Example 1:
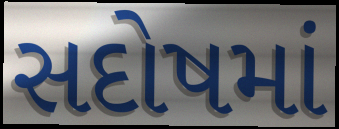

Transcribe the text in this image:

સદોષમાં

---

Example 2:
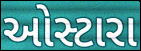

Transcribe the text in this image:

ઓસ્ટારા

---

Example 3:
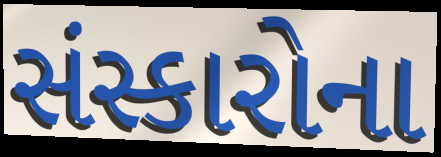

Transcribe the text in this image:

સંસ્કારોના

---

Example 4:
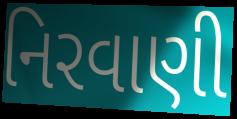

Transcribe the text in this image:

નિરવાણી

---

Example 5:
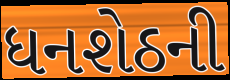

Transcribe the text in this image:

ધનશેઠની